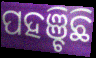
ପହଞ୍ଚିଛି